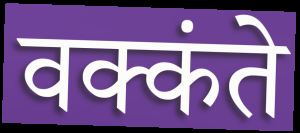
वक्कंते